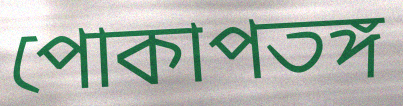
পোকাপতঙ্গ